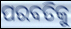
ପରବତିକୁ